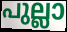
പുല്ലാ